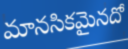
మానసికమైనదో